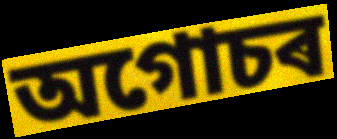
অগোচৰ